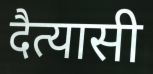
दैत्यासी